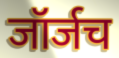
जॉर्जच